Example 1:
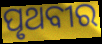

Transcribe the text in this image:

ପୃଥବୀର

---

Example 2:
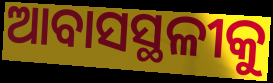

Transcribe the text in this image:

ଆବାସସ୍ଥଳୀକୁ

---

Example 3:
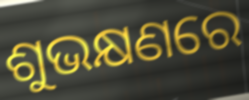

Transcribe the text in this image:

ଶୁଭକ୍ଷଣରେ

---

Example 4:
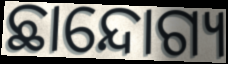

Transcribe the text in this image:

ଛାନ୍ଦୋଗ୍ୟ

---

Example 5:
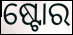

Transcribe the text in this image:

ଷ୍ଟୋର